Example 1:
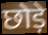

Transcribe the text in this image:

छोड़े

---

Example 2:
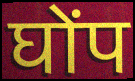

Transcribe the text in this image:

घोंप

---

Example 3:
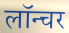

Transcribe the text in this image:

लॉन्चर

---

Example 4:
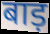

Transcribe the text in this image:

बाड़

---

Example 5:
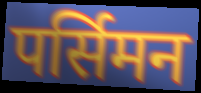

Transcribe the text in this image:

पर्सिमन